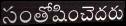
సంతోషించెదరు